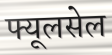
फ्यूलसेल